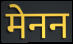
मेनन